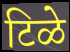
टिळे